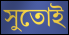
সুতোই